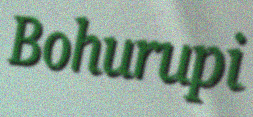
Bohurupi